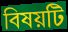
বিষয়টি